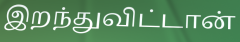
இறந்துவிட்டான்